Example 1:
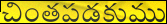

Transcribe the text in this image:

చింతపడకుము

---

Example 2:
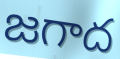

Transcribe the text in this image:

జగాద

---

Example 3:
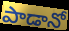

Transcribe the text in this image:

పాడానో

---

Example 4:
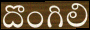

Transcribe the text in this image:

దొంగిలి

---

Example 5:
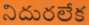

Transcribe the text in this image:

నిదురలేక